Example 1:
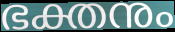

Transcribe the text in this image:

ഭക്തനും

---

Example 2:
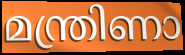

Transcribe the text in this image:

മന്ത്രിണാ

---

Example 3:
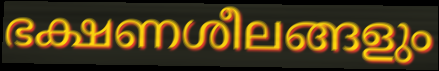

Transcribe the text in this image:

ഭക്ഷണശീലങ്ങളും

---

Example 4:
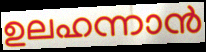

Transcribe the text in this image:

ഉലഹന്നാൻ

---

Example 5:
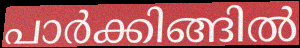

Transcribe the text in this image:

പാർക്കിങ്ങിൽ